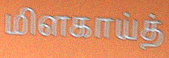
மிளகாய்த்